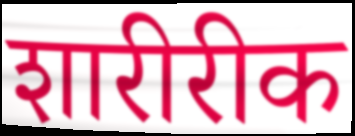
शारीरीक